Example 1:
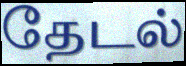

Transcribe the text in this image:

தேடல்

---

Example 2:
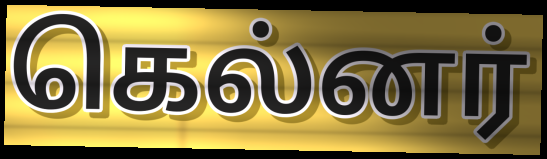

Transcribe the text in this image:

கெல்னர்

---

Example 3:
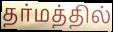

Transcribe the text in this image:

தர்மத்தில்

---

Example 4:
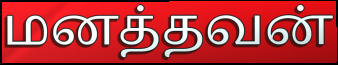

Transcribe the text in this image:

மனத்தவன்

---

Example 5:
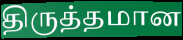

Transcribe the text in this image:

திருத்தமான